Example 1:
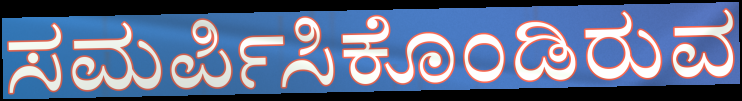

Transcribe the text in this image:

ಸಮರ್ಪಿಸಿಕೊಂಡಿರುವ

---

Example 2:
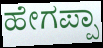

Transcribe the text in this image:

ಹೇಗಪ್ಪಾ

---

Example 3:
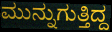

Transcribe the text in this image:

ಮುನ್ನುಗುತ್ತಿದ್ದ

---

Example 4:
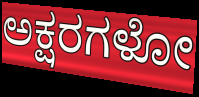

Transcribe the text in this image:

ಅಕ್ಷರಗಳೋ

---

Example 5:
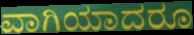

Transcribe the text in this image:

ವಾಗಿಯಾದರೂ